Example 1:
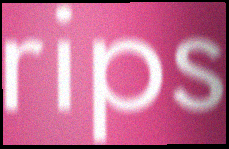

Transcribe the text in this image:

rips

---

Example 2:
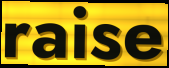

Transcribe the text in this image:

raise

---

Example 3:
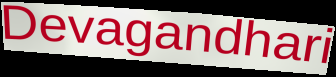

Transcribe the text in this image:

Devagandhari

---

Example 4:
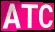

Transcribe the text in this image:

ATC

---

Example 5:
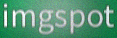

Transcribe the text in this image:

imgspot